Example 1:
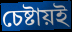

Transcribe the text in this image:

চেষ্টায়ই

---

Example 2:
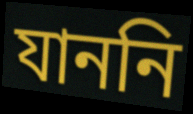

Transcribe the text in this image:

যাননি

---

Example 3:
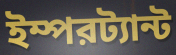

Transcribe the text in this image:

ইম্পরট্যান্ট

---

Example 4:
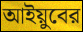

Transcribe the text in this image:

আইয়ুবের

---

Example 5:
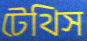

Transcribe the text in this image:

টেথিস